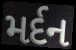
મર્દન